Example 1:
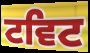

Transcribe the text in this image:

ਟਵਿਟ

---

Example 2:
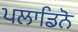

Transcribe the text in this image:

ਪਲਾਡਿਨੋ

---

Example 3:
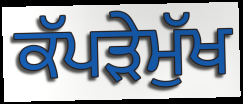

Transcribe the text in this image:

ਕੱਪੜੇਮੁੱਖ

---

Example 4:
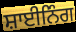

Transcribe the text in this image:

ਸ਼ਾਈਨਿੰਗ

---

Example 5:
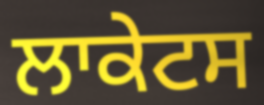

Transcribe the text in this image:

ਲਾਕੇਟਸ